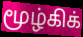
மூழ்கிக்